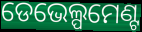
ଡେଭେଲ୍ପମେଣ୍ଟ